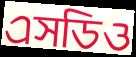
এসডিও